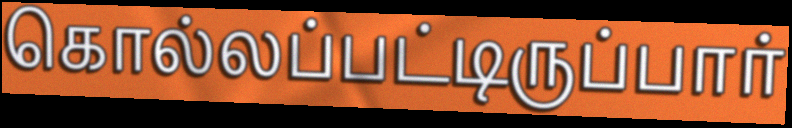
கொல்லப்பட்டிருப்பார்